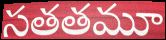
సతతమూ